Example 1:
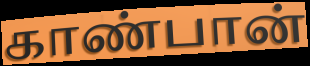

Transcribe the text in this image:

காண்பான்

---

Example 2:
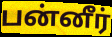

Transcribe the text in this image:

பன்னீர்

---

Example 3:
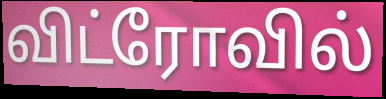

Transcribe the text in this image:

விட்ரோவில்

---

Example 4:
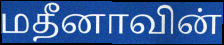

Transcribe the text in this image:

மதீனாவின்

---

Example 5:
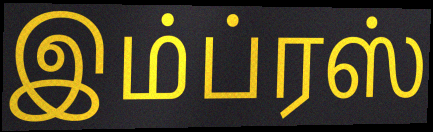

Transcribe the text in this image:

இம்ப்ரஸ்